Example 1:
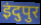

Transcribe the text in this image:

इंदुपुर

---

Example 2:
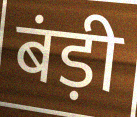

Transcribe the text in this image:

बंड़ी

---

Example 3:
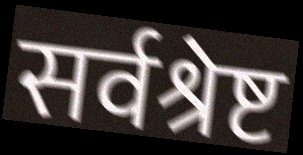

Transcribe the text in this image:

सर्वश्रेष्ट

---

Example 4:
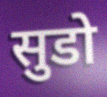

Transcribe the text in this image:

सुडो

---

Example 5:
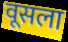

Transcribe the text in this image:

वूसला